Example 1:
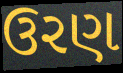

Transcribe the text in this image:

ઉરણ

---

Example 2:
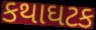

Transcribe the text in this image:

કથાઘટક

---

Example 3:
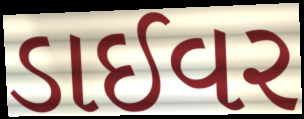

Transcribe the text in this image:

ડાઈવર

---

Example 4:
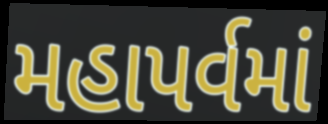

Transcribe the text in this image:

મહાપર્વમાં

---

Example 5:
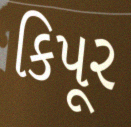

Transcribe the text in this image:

કિપૂર